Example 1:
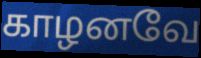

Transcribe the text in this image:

காழனவே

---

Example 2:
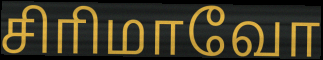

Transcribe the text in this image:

சிரிமாவோ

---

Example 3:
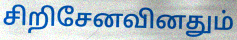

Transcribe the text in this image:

சிறிசேனவினதும்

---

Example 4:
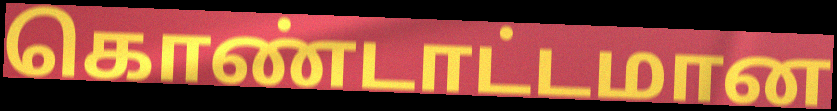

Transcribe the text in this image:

கொண்டாட்டமான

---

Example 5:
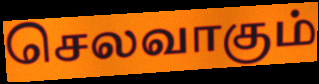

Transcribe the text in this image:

செலவாகும்